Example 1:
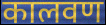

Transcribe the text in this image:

कालवण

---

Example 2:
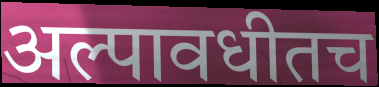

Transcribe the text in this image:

अल्पावधीतच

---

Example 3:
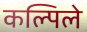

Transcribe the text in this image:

कल्पिले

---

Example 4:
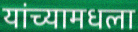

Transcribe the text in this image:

यांच्यामधला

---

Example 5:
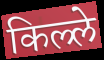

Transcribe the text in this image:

किल्ले